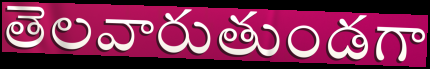
తెలవారుతుండగా